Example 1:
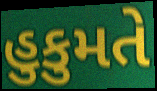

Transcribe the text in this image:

હુકુમતે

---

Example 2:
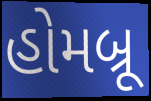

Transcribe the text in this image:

હોમબ્રૂ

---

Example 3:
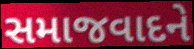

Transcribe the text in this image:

સમાજવાદને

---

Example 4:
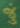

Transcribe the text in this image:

જું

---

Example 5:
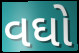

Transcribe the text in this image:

વઘો